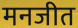
मनजीत